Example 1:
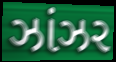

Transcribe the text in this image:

ઝાંઝર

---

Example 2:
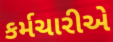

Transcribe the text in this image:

કર્મચારીએ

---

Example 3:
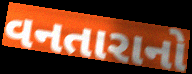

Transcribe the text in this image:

વનતારાનો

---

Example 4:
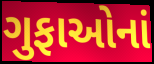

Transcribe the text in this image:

ગુફાઓનાં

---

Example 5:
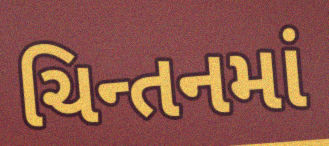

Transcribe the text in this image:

ચિન્તનમાં